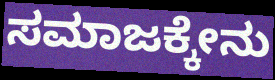
ಸಮಾಜಕ್ಕೇನು